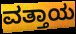
ವತ್ತಾಯ